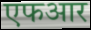
एफआर